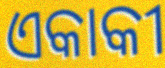
ଏକାକୀ